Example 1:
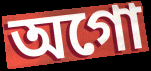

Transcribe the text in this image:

অগো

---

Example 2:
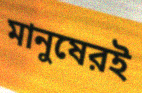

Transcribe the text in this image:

মানুষেরই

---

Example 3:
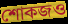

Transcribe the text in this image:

শোকজও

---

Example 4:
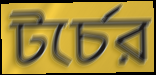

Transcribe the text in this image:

টর্চের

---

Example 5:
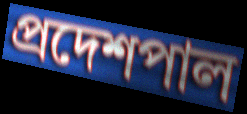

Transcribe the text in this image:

প্রদেশপাল